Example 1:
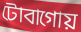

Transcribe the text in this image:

টোবাগোয়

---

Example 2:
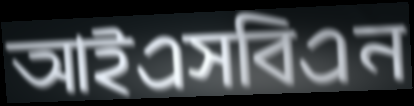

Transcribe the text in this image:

আইএসবিএন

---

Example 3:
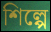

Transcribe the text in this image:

শিল্পে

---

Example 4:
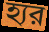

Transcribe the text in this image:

হ্যর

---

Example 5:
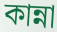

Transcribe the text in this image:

কান্না